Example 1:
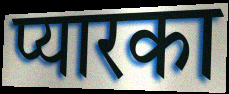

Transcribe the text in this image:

प्यारका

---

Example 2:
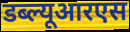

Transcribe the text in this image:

डब्ल्यूआरएस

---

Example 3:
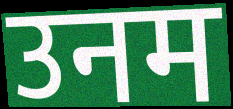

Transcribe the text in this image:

उनम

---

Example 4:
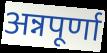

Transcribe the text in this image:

अन्नपूर्णा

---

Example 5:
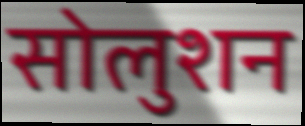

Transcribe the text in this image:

सोलुशन